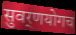
सुवर्णयोगच